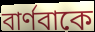
বার্ণবাকে